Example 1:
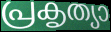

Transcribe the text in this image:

പ്രകൃത്യാ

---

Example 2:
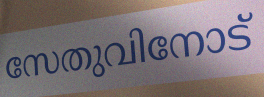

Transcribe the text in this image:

സേതുവിനോട്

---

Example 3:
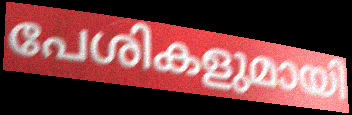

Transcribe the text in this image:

പേശികളുമായി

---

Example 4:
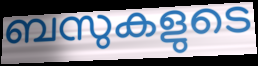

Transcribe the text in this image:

ബസുകളുടെ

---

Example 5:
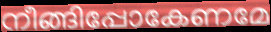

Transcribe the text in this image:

നീങ്ങിപ്പോകേണമേ